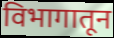
विभागातून